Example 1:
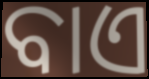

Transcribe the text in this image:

ବାଏ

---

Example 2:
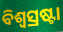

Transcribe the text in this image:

ବିଶ୍ୱସ୍ରଷ୍ଟା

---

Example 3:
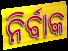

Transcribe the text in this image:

ନିର୍ବାକ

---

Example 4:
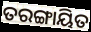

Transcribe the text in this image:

ତରଙ୍ଗାୟିତ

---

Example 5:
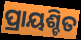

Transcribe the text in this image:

ପ୍ରାୟଶ୍ଚିତ